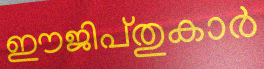
ഈജിപ്തുകാർ